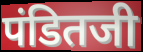
पंडितजी